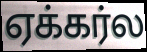
ஏக்கர்ல